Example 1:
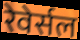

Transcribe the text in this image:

रेवेर्सल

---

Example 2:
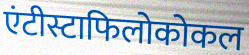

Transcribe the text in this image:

एंटीस्टाफिलोकोकल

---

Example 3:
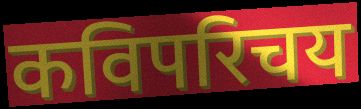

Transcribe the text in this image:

कविपरिचय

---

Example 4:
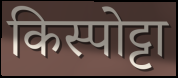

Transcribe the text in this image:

किस्पोट्टा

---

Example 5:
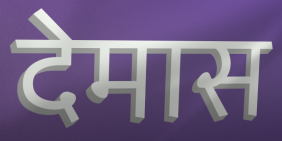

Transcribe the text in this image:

देमास